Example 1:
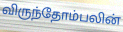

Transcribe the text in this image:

விருந்தோம்பலின்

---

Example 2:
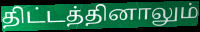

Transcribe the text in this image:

திட்டத்தினாலும்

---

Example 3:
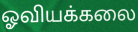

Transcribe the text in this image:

ஓவியக்கலை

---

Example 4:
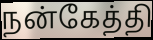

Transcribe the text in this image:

நன்கேத்தி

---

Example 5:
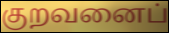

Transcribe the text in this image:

குறவனைப்